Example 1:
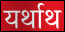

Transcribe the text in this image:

यर्थाथ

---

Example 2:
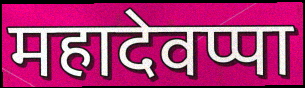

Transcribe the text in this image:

महादेवप्पा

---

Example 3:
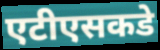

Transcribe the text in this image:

एटीएसकडे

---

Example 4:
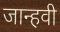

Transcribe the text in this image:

जान्हवी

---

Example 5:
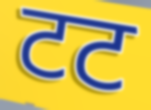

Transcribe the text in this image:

टट